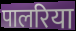
पालरिया